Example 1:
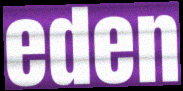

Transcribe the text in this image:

eden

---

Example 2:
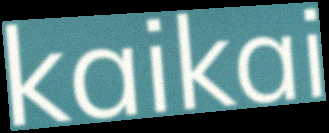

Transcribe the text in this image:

kaikai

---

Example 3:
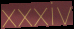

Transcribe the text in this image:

xxxiv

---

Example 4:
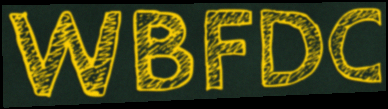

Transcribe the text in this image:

WBFDC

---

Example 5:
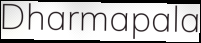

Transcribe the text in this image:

Dharmapala